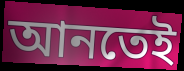
আনতেই